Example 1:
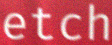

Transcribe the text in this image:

etch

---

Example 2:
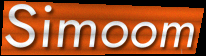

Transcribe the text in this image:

Simoom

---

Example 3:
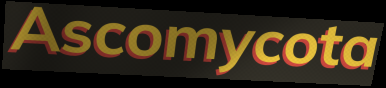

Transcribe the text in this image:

Ascomycota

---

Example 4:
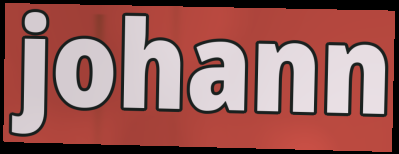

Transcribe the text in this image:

johann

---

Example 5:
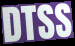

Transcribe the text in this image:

DTSS